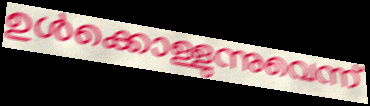
ഉൾക്കൊള്ളുന്നുവെന്ന്